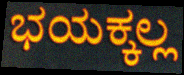
ಭಯಕ್ಕಲ್ಲ